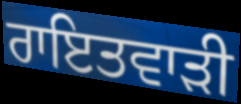
ਰਾਇਤਵਾੜੀ